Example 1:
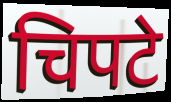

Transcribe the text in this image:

चिपटे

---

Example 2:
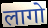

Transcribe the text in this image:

लागो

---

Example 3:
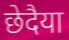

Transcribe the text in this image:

छेदैया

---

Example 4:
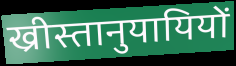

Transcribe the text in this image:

ख्रीस्तानुयायियों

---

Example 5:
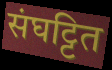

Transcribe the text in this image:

संघट्टित